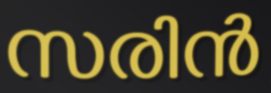
സരിൻ